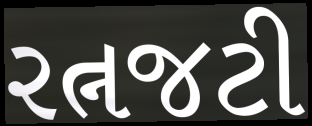
રત્નજટી